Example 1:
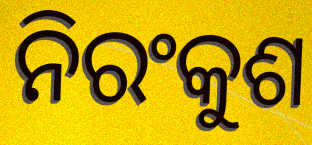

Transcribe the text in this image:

ନିରଂକୁଶ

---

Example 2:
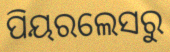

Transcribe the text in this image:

ପିୟରଲେସରୁ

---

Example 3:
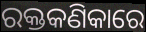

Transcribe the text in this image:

ରକ୍ତକଣିକାରେ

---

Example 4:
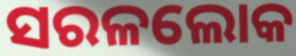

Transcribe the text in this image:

ସରଳଲୋକ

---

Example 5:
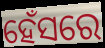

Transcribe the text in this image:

ହେଁସରେ